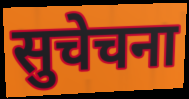
सुचेचना